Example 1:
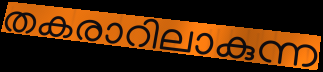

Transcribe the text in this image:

തകരാറിലാകുന്ന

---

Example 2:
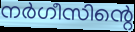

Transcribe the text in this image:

നർഗീസിന്റെ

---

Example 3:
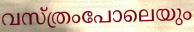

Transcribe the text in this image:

വസ്ത്രംപോലെയും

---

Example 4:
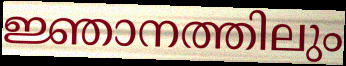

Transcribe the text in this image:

ജ്ഞാനത്തിലും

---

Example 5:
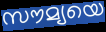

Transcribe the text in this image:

സൗമ്യയെ